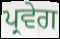
ਪ੍ਰਵੇਗ